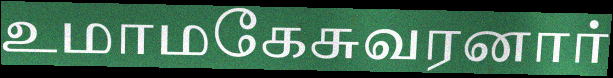
உமாமகேசுவரனார்